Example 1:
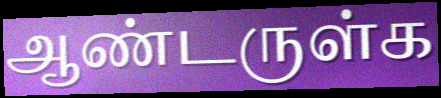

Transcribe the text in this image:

ஆண்டருள்க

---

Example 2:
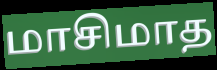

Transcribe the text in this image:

மாசிமாத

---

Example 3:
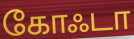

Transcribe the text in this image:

கோஃடா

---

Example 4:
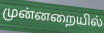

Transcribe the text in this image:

முன்னறையில்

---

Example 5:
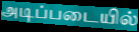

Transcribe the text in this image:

அடிப்படையில்